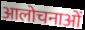
आलोचनाओं